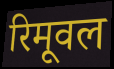
रिमूवल